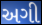
અગી